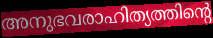
അനുഭവരാഹിത്യത്തിന്റെ